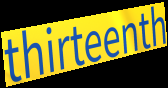
thirteenth